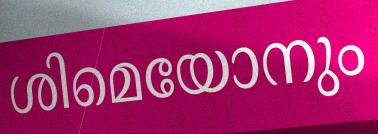
ശിമെയോനും